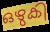
ഒഴുകി